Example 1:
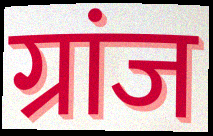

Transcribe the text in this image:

ग्रांज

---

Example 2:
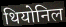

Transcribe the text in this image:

थियोनिल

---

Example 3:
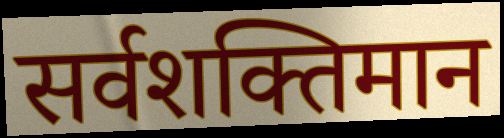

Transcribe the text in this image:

सर्वशक्तिमान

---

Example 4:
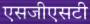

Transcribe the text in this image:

एसजीएसटी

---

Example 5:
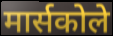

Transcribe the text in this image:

मार्सकोले